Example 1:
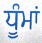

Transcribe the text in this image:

ਧੂੰਮਾਂ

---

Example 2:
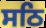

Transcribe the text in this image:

ਸਠਿ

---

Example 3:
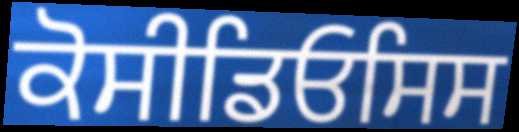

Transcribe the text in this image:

ਕੋਸੀਡਿਓਸਿਸ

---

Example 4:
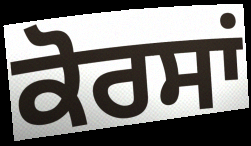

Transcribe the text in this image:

ਕੋਰਸਾਂ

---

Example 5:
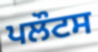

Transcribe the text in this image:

ਪਲੌਟਸ